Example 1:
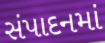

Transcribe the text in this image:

સંપાદનમાં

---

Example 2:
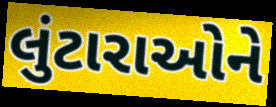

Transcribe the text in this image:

લુંટારાઓને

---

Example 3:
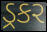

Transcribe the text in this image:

ડ્રકર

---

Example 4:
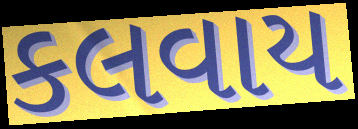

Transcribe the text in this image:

કલવાય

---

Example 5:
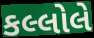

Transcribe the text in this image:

કલ્લોલે